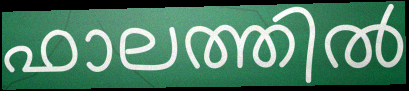
ഫാലത്തിൽ